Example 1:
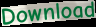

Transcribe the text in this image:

Download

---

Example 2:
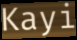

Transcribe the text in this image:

Kayi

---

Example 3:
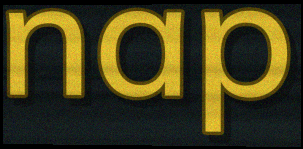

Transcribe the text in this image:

nap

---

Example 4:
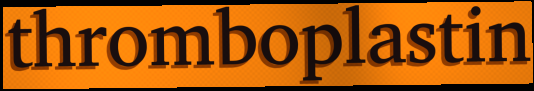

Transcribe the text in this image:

thromboplastin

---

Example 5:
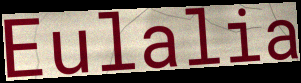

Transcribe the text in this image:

Eulalia